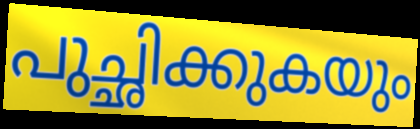
പുച്ഛിക്കുകയും